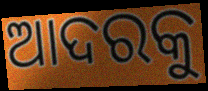
ଆଦରକୁ